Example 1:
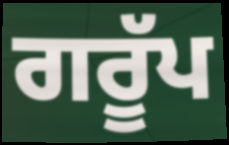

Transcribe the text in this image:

ਗਰੂੱਪ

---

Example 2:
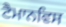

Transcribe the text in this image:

ਟੈਮਾਨਵਿਸ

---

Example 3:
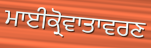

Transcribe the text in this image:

ਮਾਈਕ੍ਰੋਵਾਤਾਵਰਣ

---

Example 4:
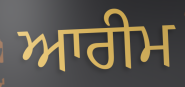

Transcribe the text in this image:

ਆਰੀਮ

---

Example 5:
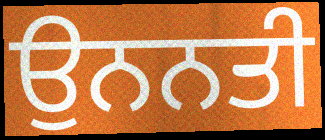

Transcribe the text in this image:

ਉਨਨਤੀ